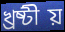
খ্রষ্টীয়